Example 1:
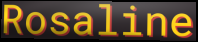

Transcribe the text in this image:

Rosaline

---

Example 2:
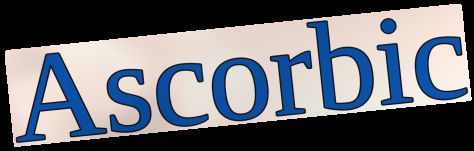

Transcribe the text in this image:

Ascorbic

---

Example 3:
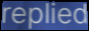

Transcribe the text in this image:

replied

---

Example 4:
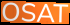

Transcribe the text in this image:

OSAT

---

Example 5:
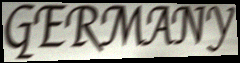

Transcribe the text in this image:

GERMANY